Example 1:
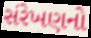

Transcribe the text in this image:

સંરેખણનો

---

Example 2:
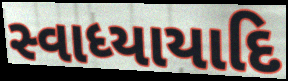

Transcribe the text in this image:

સ્વાધ્યાયાદિ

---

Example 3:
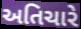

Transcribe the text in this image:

અતિચારે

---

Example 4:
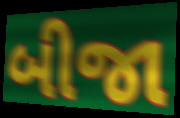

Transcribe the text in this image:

બીજા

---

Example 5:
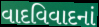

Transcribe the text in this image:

વાદવિવાદનાં